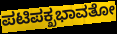
ಪಟಿಪಕ್ಖಭಾವತೋ